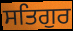
ਸਤਿਗੁਰ